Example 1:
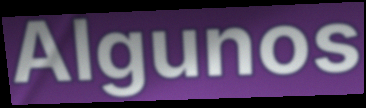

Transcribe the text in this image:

Algunos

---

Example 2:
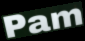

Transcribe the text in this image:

Pam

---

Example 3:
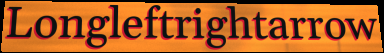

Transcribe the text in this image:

Longleftrightarrow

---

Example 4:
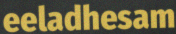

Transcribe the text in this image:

eeladhesam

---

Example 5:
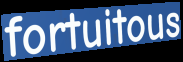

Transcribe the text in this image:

fortuitous